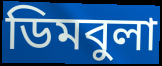
ডিমবুলা